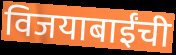
विजयाबाईंची